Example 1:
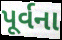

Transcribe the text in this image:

પૂર્વના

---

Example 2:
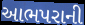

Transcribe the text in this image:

આભપરાની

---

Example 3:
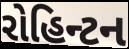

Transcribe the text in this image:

રોહિન્ટન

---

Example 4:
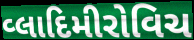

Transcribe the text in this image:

વ્લાદિમીરોવિચ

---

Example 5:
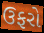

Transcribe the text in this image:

ઉફરો